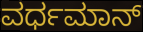
ವರ್ಧಮಾನ್